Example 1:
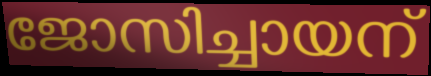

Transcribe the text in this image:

ജോസിച്ചായന്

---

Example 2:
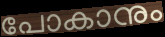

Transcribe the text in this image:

പോകാനും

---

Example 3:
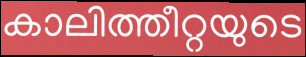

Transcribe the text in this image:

കാലിത്തീറ്റയുടെ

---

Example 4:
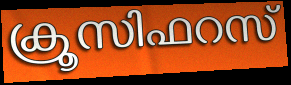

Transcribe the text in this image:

ക്രൂസിഫറസ്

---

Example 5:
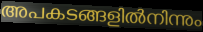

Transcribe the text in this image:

അപകടങ്ങളിൽനിന്നും